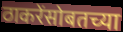
ठाकरेंसोबतच्या